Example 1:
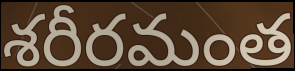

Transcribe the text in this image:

శరీరమంత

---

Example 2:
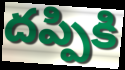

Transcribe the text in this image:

దప్పికి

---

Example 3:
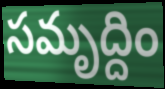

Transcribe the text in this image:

సమృద్దిం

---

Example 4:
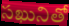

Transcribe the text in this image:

సఖునితో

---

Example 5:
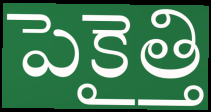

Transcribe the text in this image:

పెకైత్తి